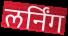
लर्निंग